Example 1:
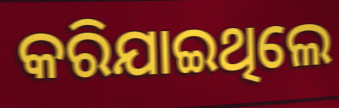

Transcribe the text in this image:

କରିଯାଇଥିଲେ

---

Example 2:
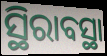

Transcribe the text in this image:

ସ୍ଥିରାବସ୍ଥା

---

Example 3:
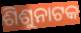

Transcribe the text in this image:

ଶିଶୁନାଟକ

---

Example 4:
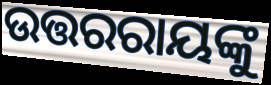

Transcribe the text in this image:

ଉତ୍ତରରାୟଙ୍କୁ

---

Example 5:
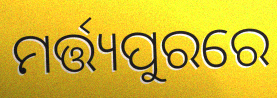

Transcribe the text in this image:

ମର୍ତ୍ତ୍ୟପୁରରେ